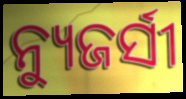
ନ୍ୟୁଜର୍ସୀ